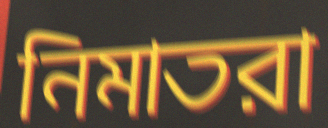
নিমাতরা